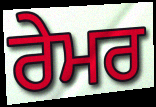
ਰੇਮਰ